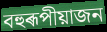
বহুৰূপীয়াজন